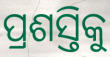
ପ୍ରଶସ୍ତିକୁ